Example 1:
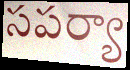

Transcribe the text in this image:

సపర్యా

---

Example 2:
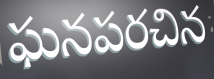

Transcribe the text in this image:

ఘనపరచిన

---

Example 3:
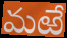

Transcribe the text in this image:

మఱే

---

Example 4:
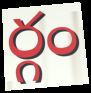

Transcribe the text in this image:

ర్గం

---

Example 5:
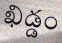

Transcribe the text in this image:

ఖిడ్డం